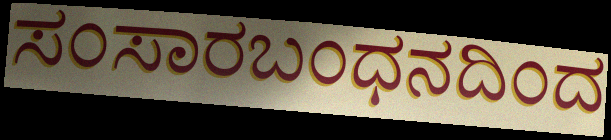
ಸಂಸಾರಬಂಧನದಿಂದ